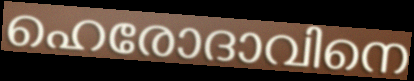
ഹെരോദാവിനെ